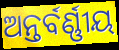
ଅନ୍ତର୍ବର୍ଣ୍ଣୀୟ